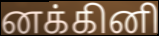
னக்கினி